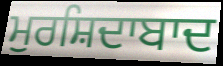
ਮੁਰਸ਼ਿਦਾਬਾਦ